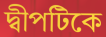
দ্বীপটিকে